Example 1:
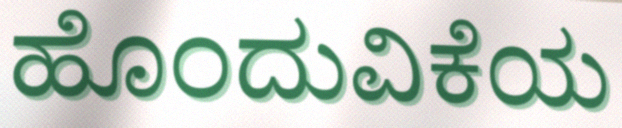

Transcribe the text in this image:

ಹೊಂದುವಿಕೆಯ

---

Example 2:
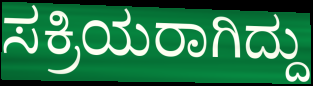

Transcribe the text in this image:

ಸಕ್ರಿಯರಾಗಿದ್ದು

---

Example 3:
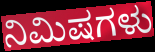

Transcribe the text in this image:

ನಿಮಿಷಗಳು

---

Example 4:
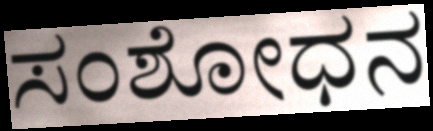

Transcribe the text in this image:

ಸಂಶೋಧನ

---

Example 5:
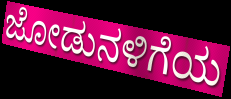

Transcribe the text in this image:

ಜೋಡುನಳಿಗೆಯ